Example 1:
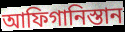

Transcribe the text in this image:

আফিগানিস্তান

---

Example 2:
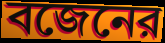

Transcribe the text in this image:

বজেনের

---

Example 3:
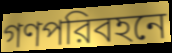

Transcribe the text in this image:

গণপরিবহনে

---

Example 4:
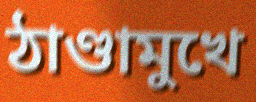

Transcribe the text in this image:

ঠাণ্ডামুখে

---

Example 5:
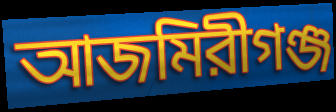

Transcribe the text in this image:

আজমিরীগঞ্জ